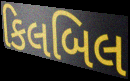
કિલબિલ